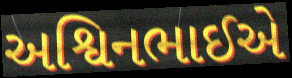
અશ્વિનભાઈએ